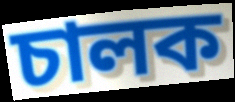
চালক